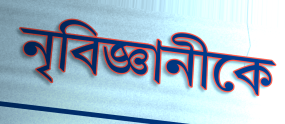
নৃবিজ্ঞানীকে